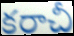
కరాచీ